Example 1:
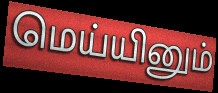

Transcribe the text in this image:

மெய்யினும்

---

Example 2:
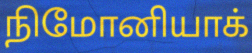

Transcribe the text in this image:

நிமோனியாக்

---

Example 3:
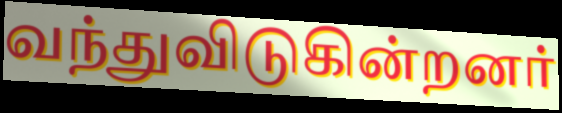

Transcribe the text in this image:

வந்துவிடுகின்றனர்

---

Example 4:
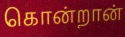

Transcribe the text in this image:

கொன்றான்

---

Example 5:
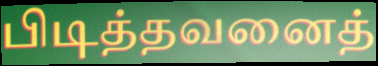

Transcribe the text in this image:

பிடித்தவனைத்